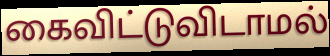
கைவிட்டுவிடாமல்